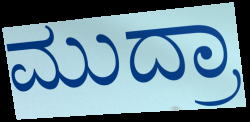
ಮುದ್ರಾ